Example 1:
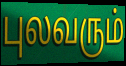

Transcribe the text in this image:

புலவரும்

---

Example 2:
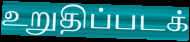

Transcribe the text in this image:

உறுதிப்படக்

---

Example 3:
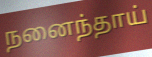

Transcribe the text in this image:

நனைந்தாய்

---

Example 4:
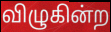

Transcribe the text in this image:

விழுகின்ற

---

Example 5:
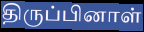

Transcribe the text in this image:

திருப்பினாள்